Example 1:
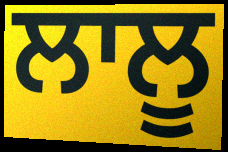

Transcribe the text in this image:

ਲਾਲੂ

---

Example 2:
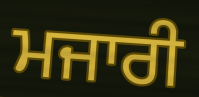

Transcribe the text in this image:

ਮਜਾਰੀ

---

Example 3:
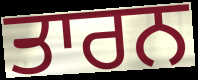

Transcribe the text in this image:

ਤਾਰਨ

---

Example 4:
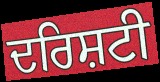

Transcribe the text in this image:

ਦਰਿਸ਼ਟੀ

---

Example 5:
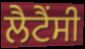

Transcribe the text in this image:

ਲੈਟੈਂਸੀ